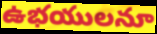
ఉభయులనూ